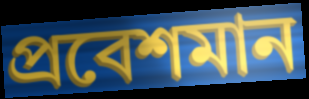
প্রবেশমান